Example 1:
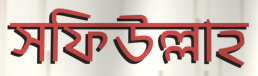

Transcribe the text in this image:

সফিউল্লাহ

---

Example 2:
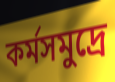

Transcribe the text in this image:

কর্মসমুদ্রে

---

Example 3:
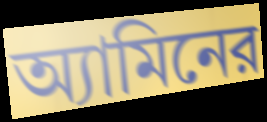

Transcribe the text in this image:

অ্যামিনের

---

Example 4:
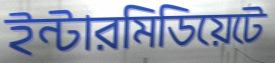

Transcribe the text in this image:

ইন্টারমিডিয়েটে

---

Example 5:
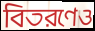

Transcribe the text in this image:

বিতরণেও